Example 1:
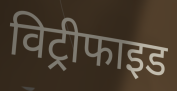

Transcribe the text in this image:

विट्रीफाइड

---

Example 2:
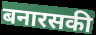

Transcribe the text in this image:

बनारसकी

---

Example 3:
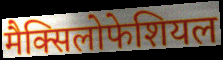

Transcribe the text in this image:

मैक्सिलोफेशियल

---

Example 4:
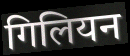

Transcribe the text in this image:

गिलियन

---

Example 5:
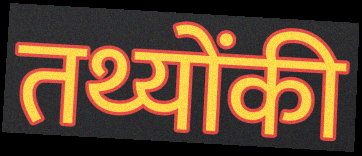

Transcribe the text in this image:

तथ्योंकी